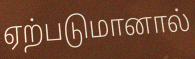
ஏற்படுமானால்